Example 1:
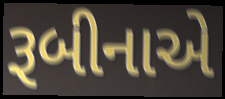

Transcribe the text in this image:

રૂબીનાએ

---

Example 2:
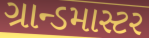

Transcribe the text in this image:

ગ્રાન્ડમાસ્ટર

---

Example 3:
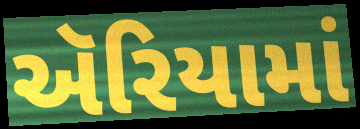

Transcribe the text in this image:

ઍરિયામાં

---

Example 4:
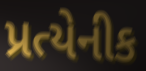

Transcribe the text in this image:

પ્રત્યેનીક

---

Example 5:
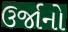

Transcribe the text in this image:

ઉર્જાનો